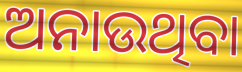
ଅନାଉଥିବା